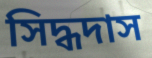
সিদ্ধদাস